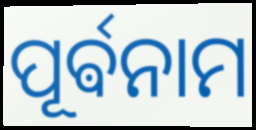
ପୂର୍ଵନାମ